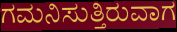
ಗಮನಿಸುತ್ತಿರುವಾಗ